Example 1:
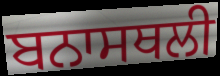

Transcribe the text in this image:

ਬਨਾਸਥਲੀ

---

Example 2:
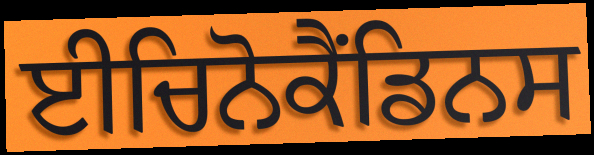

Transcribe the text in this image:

ਈਚਿਨੋਕੈਂਡਿਨਸ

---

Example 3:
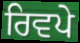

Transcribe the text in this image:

ਰਿਵਪੇ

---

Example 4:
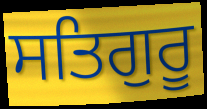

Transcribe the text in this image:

ਸਤਿਗੁਰੂ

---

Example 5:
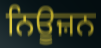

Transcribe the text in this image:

ਨਿਊਜ਼ਨ